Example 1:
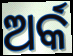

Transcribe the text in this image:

ଅର୍କ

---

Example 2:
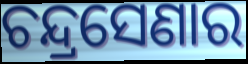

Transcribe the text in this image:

ଚନ୍ଦ୍ରସେଣାର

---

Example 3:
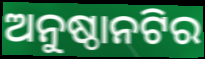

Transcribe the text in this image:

ଅନୁଷ୍ଠାନଟିର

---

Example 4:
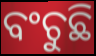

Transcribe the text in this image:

ବଂଚୁଛି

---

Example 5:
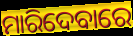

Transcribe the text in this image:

ମାରିଦେବାରେ